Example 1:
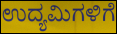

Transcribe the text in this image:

ಉದ್ಯಮಿಗಳಿಗೆ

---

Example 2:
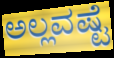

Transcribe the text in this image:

ಅಲ್ಲವಷ್ಟೆ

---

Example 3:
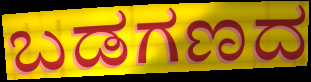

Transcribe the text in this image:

ಬಡಗಣದ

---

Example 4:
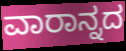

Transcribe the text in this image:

ವಾರಾನ್ನದ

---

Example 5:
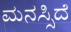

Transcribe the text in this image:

ಮನಸ್ಸಿದೆ